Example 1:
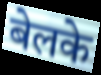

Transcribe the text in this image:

बेलके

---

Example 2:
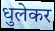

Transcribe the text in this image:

धुलेकर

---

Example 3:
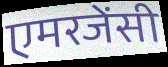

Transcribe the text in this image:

एमरजेंसी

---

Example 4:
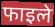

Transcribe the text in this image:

फाइले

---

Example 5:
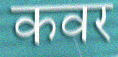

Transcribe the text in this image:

कवर